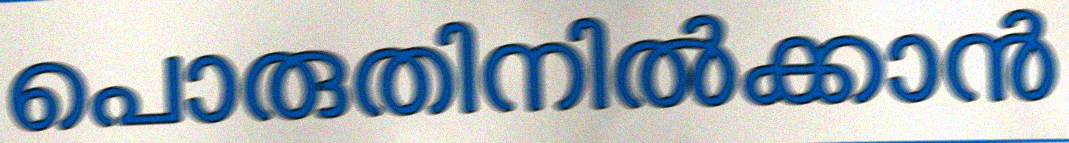
പൊരുതിനിൽക്കാൻ